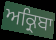
ਅਕ੍ਰਿਬਾ